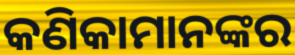
କଣିକାମାନଙ୍କର